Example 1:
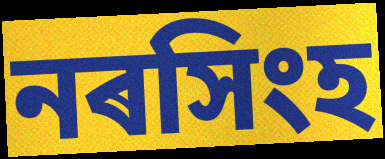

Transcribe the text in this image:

নৰসিংহ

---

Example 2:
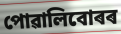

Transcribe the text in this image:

পোৱালিবোৰৰ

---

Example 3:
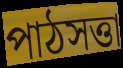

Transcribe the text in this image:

পাঠসত্তা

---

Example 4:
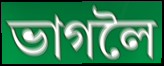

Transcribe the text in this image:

ভাগলৈ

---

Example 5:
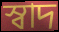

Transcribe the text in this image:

স্বাদ